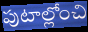
పుటాల్లోంచి